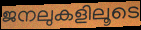
ജനലുകളിലൂടെ